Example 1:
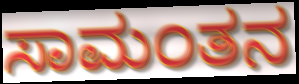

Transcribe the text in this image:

ಸಾಮಂತನ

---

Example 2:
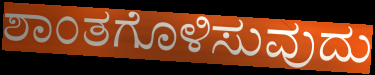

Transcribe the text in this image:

ಶಾಂತಗೊಳಿಸುವುದು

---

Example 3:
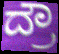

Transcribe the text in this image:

ದ್ರೌ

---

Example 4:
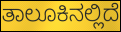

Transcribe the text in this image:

ತಾಲೂಕಿನಲ್ಲಿದೆ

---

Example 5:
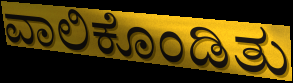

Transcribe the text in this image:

ವಾಲಿಕೊಂಡಿತು